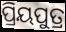
ପ୍ରିୟପୁତ୍ର